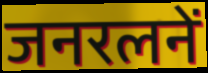
जनरलनें